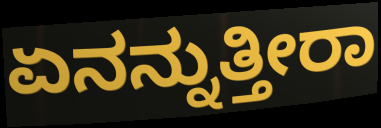
ಏನನ್ನುತ್ತೀರಾ